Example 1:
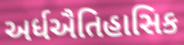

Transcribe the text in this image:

અર્ધઐતિહાસિક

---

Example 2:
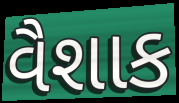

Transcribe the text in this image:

વૈશાક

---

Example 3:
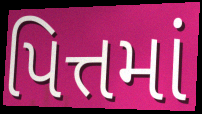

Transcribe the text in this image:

પિત્તમાં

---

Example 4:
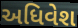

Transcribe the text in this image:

અધિવેશ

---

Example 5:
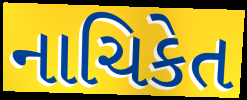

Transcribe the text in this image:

નાચિકેત